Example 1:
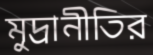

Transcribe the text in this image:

মুদ্রানীতির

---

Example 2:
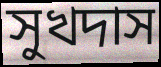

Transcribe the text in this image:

সুখদাস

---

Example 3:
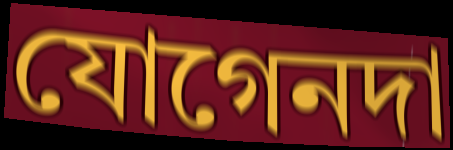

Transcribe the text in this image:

যোগেনদা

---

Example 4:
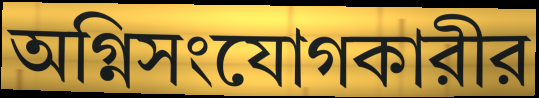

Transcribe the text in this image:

অগ্নিসংযোগকারীর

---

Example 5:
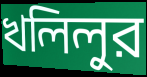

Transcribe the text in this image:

খলিলুর